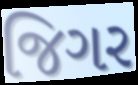
જિગર